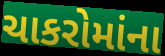
ચાકરોમાંના